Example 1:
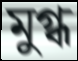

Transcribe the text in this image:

মুগ্ধ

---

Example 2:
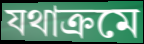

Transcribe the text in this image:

যথাক্ৰমে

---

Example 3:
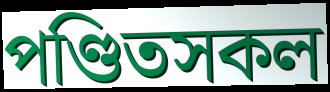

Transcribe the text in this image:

পণ্ডিতসকল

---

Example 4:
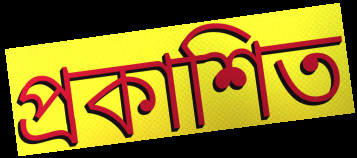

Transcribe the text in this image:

প্ৰকাশিত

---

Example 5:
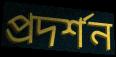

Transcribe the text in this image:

প্ৰদৰ্শন